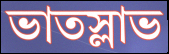
ভাতস্লাভ